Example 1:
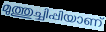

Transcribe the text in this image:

മുത്തുച്ചിപ്പിയാണ്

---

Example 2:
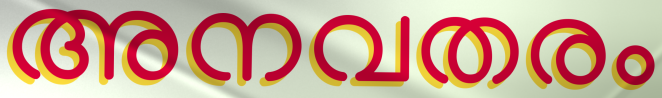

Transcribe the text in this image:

അനവതരം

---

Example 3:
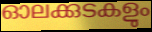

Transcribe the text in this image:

ഓലക്കുടകളും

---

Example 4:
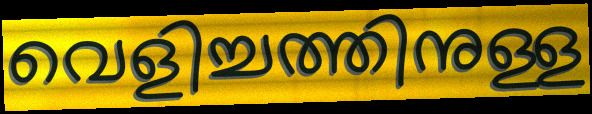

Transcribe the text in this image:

വെളിച്ചത്തിനുള്ള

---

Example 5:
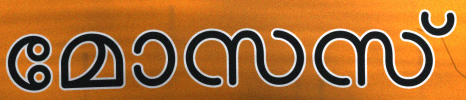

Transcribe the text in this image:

മോസസ്